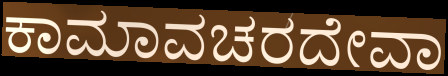
ಕಾಮಾವಚರದೇವಾ